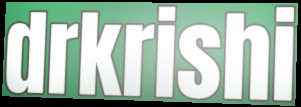
drkrishi